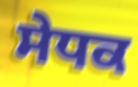
ਸੇਧਕ